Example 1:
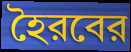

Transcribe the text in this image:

হৈরবের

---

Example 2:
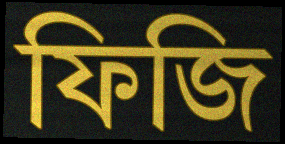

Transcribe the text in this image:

ফিজি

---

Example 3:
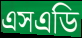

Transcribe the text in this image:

এসএডি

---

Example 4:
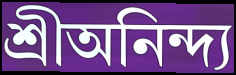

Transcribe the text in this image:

শ্রীঅনিন্দ্য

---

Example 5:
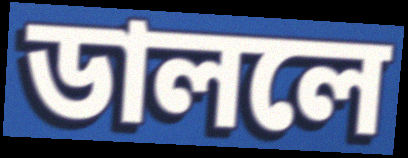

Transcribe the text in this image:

ডাললে